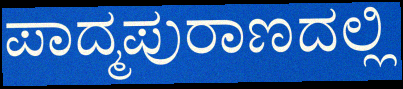
ಪಾದ್ಮಪುರಾಣದಲ್ಲಿ